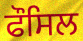
ਫੌਸਿਲ